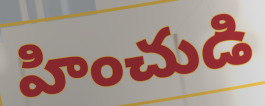
హించుడి